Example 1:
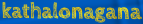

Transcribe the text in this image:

kathalonagana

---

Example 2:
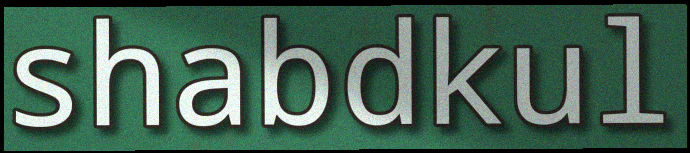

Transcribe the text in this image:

shabdkul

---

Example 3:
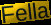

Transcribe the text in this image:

Fella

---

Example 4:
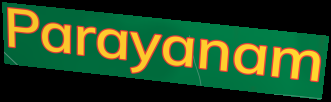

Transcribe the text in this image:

Parayanam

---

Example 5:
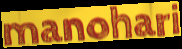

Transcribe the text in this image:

manohari